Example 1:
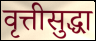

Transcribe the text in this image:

वृत्तीसुद्धा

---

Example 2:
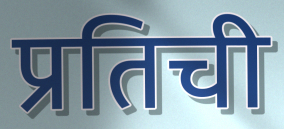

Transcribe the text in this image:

प्रतिची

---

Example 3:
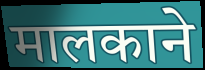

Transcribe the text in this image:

मालकाने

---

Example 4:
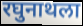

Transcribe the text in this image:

रघुनाथला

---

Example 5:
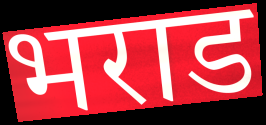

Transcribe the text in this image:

भराड